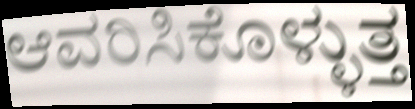
ಆವರಿಸಿಕೊಳ್ಳುತ್ತ